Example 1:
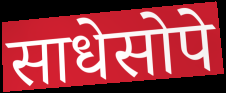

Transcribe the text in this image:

साधेसोपे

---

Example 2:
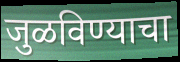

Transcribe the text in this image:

जुळविण्याचा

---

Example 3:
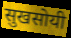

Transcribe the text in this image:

सुखसोयी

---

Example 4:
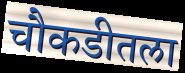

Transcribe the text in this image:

चौकडीतला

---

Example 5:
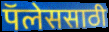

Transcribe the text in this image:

पॅलेससाठी